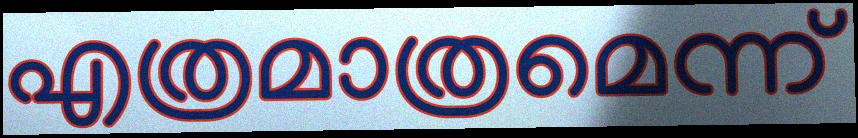
എത്രമാത്രമെന്ന്